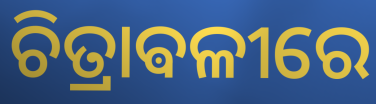
ଚିତ୍ରାଵଳୀରେ